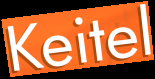
Keitel